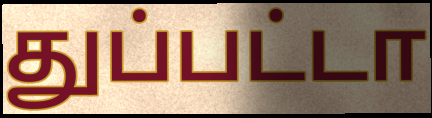
துப்பட்டா